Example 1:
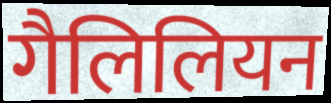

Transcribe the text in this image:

गैलिलियन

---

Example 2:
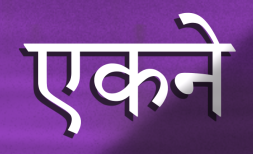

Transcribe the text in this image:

एकने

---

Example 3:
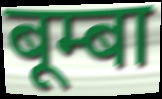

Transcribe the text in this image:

बूम्बा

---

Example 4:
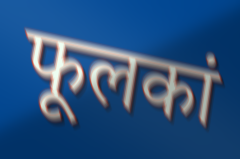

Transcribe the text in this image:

फूलकां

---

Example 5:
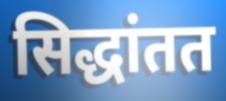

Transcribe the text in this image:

सिद्धांतत